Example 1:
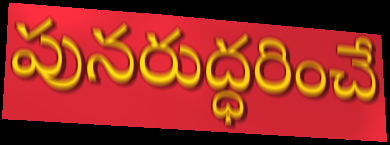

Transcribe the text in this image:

పునరుద్ధరించే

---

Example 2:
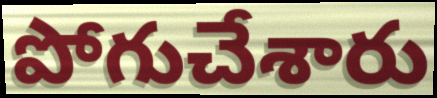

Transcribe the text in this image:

పోగుచేశారు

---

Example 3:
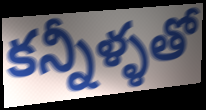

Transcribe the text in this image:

కన్నీళ్ళతో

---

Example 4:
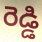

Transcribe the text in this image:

రెడ్డి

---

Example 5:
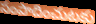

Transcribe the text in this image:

సంపాదించుటకు